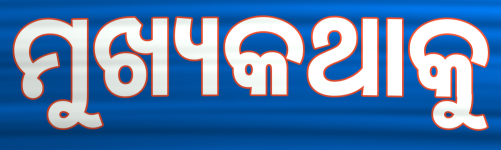
ମୁଖ୍ୟକଥାକୁ